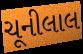
ચૂનીલાલ